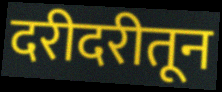
दरीदरीतून